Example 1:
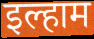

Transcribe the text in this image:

इल्हाम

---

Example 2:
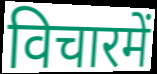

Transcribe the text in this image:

विचारमें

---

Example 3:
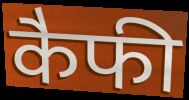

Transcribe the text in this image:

कैफी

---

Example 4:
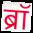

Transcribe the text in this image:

ब्रॉ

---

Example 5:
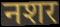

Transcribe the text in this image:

नशर